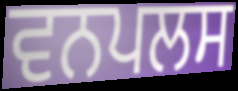
ਵਨਪਲਸ